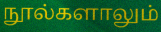
நூல்களாலும்